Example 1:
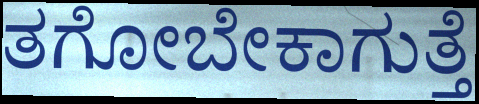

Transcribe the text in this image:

ತಗೋಬೇಕಾಗುತ್ತೆ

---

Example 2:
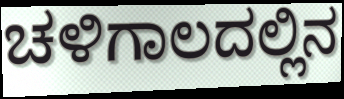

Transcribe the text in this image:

ಚಳಿಗಾಲದಲ್ಲಿನ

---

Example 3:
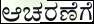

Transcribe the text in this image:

ಆಚರಣೆಗೆ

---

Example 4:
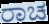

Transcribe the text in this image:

ರಾಚ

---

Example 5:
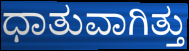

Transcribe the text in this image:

ಧಾತುವಾಗಿತ್ತು